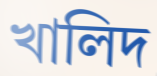
খালিদ